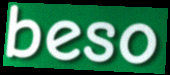
beso